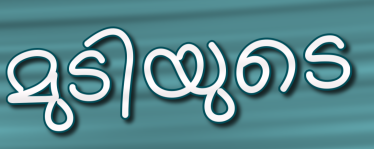
മുടിയുടെ